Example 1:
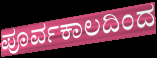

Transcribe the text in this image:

ಪೂರ್ವಕಾಲದಿಂದ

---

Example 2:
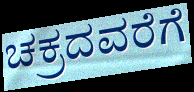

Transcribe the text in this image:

ಚಕ್ರದವರೆಗೆ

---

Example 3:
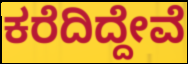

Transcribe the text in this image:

ಕರೆದಿದ್ದೇವೆ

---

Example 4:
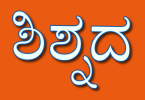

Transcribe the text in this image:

ಶಿಶ್ನದ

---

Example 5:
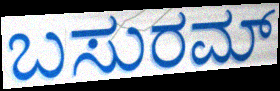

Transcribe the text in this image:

ಬಸುರಮ್